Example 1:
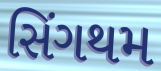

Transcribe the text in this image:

સિંગથમ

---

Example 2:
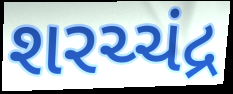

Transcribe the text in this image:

શરચ્ચંદ્ર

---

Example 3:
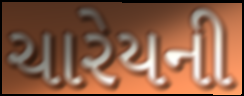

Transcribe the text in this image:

ચારેયની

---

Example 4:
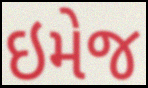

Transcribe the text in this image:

ઇમેજ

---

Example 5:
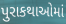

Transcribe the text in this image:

પુરાકથાઓમાં